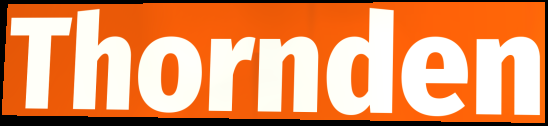
Thornden